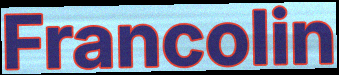
Francolin